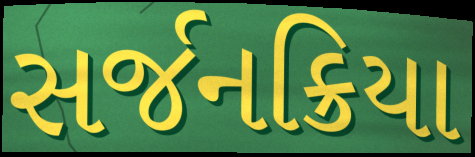
સર્જનક્રિયા